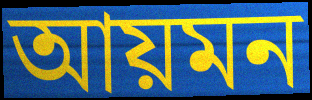
আয়মন